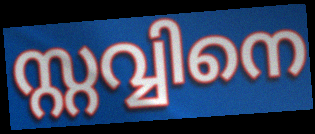
സ്റ്റവ്വിനെ